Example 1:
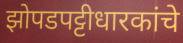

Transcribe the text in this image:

झोपडपट्टीधारकांचे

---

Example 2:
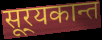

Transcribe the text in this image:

सूर्यकान्त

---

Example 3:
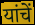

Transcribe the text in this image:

यांचें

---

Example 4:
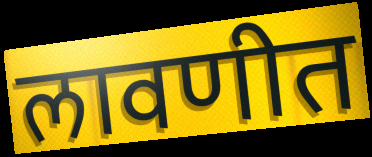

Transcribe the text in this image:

लावणीत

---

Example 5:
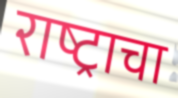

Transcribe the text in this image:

राष्ट्राचा